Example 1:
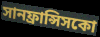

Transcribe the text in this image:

সানফ্রান্সিসকো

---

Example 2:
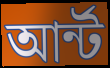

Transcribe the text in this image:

আর্ন্ট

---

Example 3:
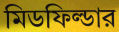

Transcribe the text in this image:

মিডফিল্ডার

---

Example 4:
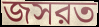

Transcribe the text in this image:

জসরত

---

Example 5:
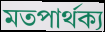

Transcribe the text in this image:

মতপার্থক্য